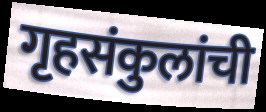
गृहसंकुलांची